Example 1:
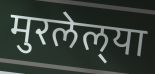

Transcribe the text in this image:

मुरलेल्या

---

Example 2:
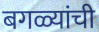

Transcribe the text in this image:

बगळ्यांची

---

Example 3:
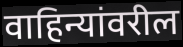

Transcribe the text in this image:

वाहिन्यांवरील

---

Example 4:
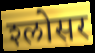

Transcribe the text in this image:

श्लोसर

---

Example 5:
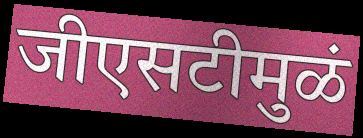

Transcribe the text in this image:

जीएसटीमुळं